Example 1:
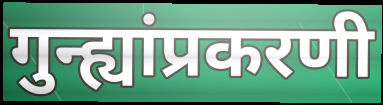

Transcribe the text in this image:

गुन्ह्यांप्रकरणी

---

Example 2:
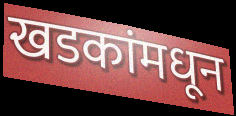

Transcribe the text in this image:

खडकांमधून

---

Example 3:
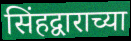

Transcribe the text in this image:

सिंहद्वाराच्या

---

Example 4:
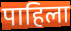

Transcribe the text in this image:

पाहिला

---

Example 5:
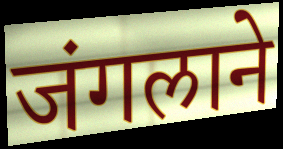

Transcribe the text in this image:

जंगलाने